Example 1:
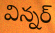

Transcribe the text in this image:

విన్నర్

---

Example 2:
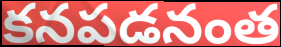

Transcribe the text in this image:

కనపడనంత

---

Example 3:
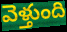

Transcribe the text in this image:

వెళ్తుంది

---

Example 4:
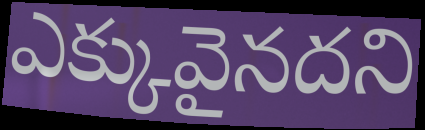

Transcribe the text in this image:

ఎక్కువైనదని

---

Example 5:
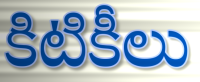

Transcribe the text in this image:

కిటికీలు